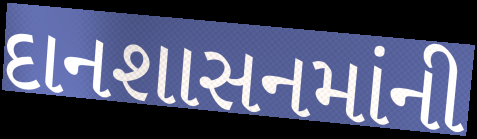
દાનશાસનમાંની